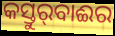
କସ୍ତୁର୍‍ବାଈର